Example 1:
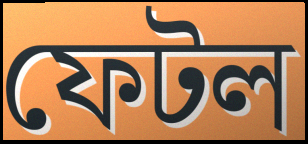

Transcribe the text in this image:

ফেটল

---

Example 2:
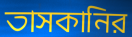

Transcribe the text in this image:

তাসকানির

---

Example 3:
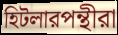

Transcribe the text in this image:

হিটলারপন্থীরা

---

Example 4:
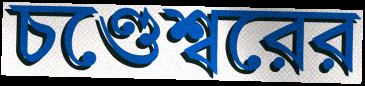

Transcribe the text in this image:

চণ্ডেশ্বরের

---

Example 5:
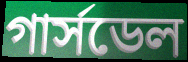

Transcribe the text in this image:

গার্সডেল